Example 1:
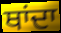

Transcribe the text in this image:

ਥਾਂਦਾ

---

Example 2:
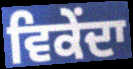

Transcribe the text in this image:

ਵਿਕੇਂਦਾ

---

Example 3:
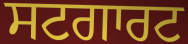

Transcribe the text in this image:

ਸਟਗਾਰਟ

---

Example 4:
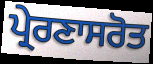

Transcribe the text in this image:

ਪ੍ਰੇਰਣਾਸਰੋਤ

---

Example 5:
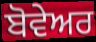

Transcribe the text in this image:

ਬੋਵੇਅਰ